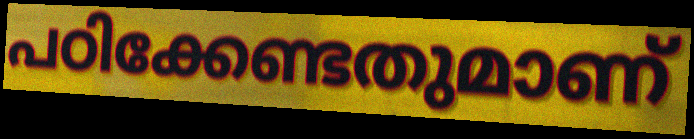
പഠിക്കേണ്ടതുമാണ്